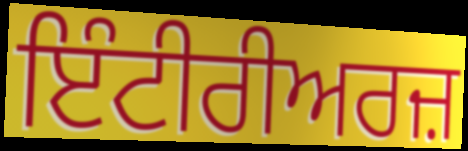
ਇੰਟੀਰੀਅਰਜ਼